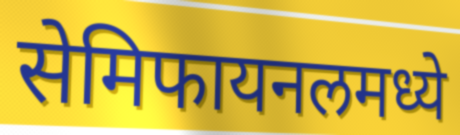
सेमिफायनलमध्ये